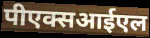
पीएक्सआईएल